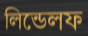
লিন্ডেলফ